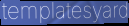
templatesyard